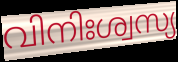
വിനിഃശ്വസ്യ